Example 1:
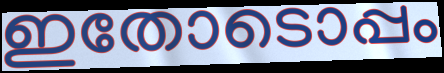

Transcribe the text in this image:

ഇതോടൊപ്പം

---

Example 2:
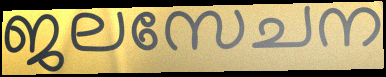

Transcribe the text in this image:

ജലസേചന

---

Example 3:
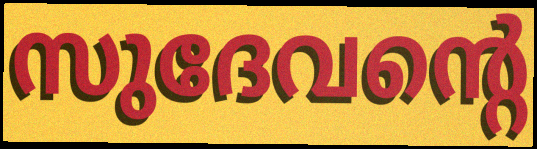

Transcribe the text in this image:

സുദേവന്റെ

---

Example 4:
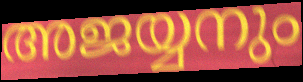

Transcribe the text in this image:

അജയ്യനും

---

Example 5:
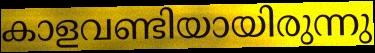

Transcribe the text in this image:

കാളവണ്ടിയായിരുന്നു